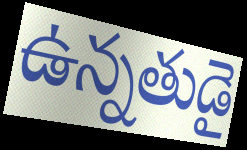
ఉన్నతుడై